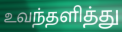
உவந்தளித்து